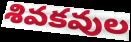
శివకవుల